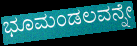
ಭೂಮಂಡಲವನ್ನೇ